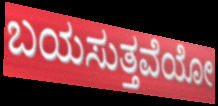
ಬಯಸುತ್ತವೆಯೋ